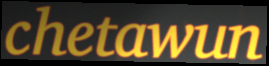
chetawun